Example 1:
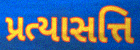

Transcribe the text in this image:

પ્રત્યાસત્તિ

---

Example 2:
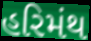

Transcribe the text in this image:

હરિમંથ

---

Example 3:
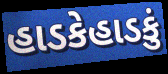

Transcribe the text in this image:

હાડકેહાડકું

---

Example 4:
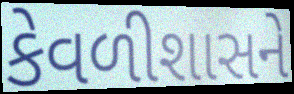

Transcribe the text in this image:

કેવળીશાસને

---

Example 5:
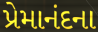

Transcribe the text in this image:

પ્રેમાનંદના